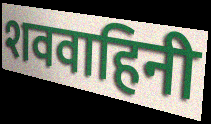
शववाहिनी